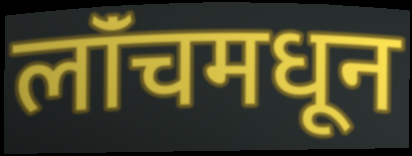
लॉंचमधून